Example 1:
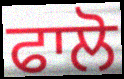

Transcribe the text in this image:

ਫਾਲੋ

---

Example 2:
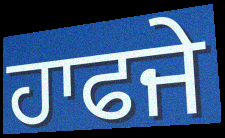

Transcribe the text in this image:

ਹਾਫਜੇ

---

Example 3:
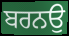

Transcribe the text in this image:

ਬਰਨਉ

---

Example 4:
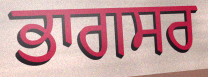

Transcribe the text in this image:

ਭਾਗਸਰ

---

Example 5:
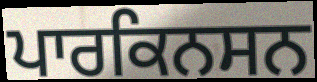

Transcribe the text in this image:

ਪਾਰਕਿਨਸਨ